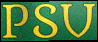
PSU